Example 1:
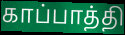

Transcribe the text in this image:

காப்பாத்தி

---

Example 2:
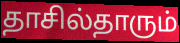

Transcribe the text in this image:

தாசில்தாரும்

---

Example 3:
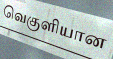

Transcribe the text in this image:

வெகுளியான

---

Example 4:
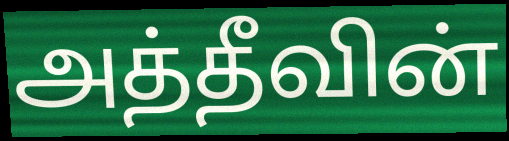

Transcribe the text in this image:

அத்தீவின்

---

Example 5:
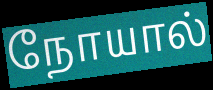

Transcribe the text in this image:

நோயால்